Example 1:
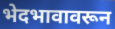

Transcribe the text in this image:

भेदभावावरून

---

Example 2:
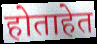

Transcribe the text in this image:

होताहेत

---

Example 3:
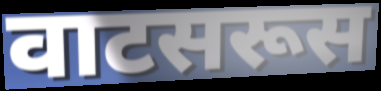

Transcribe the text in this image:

वाटसरूस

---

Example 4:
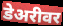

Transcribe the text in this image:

डेअरीवर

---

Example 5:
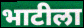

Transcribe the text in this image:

भाटीला